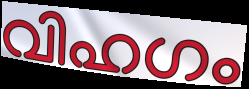
വിഹഗം